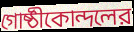
গোষ্ঠীকোন্দলের